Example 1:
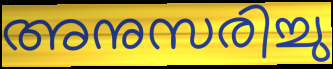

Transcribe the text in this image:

അനുസരിച്ചു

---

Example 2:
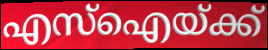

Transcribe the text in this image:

എസ്ഐയ്ക്ക്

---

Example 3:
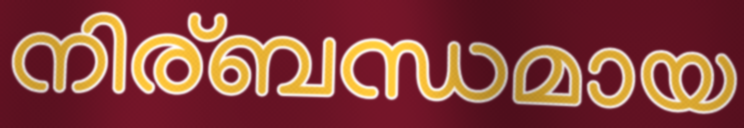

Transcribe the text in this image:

നിര്ബന്ധമായ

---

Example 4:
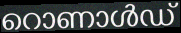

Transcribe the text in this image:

റൊണാൾഡ്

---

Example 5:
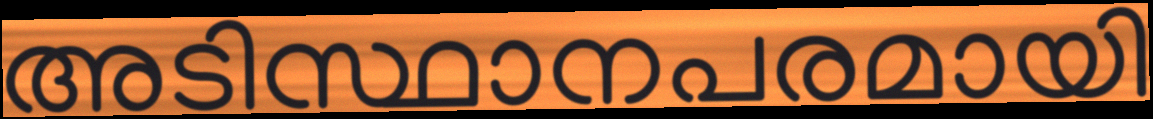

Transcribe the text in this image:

അടിസ്ഥാനപരമായി